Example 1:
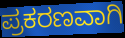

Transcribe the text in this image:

ಪ್ರಕರಣವಾಗಿ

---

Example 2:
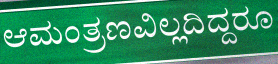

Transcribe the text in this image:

ಆಮಂತ್ರಣವಿಲ್ಲದಿದ್ದರೂ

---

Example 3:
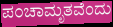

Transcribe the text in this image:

ಪಂಚಾಮೃತವೆಂದು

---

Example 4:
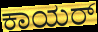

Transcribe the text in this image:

ಕಾಯರ್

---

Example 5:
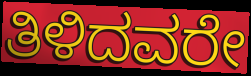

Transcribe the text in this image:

ತಿಳಿದವರೇ